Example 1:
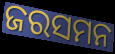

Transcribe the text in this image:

ଜରସମନ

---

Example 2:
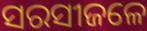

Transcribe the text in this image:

ସରସୀଜଳେ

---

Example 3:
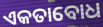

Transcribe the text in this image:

ଏକତାବୋଧ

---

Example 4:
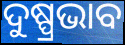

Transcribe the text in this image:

ଦୁଷ୍ପ୍ରଭାବ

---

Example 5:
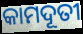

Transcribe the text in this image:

କାମଦୂତୀ